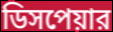
ডিসপেয়ার